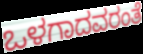
ಒಳಗಾದವರಂತೆ